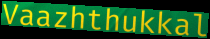
Vaazhthukkal